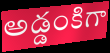
అడ్డంకిగా